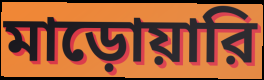
মাড়োয়ারি